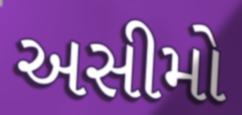
અસીમો